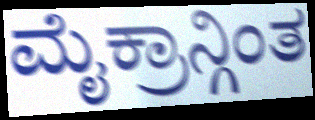
ಮೈಕ್ರಾನ್ಗಿಂತ